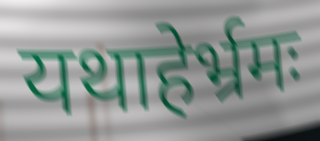
यथाहेर्भ्रमः